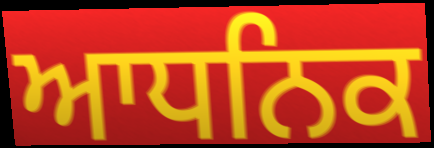
ਆਧਨਿਕ